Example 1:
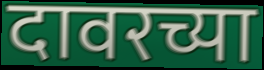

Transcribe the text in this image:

दावरच्या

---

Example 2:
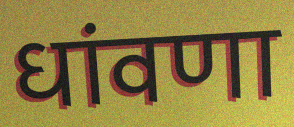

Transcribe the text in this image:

धांवणा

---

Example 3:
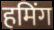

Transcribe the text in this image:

हमिंग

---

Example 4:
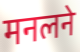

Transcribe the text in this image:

मनलने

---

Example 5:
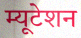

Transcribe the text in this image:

म्यूटेशन